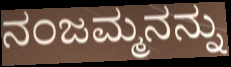
ನಂಜಮ್ಮನನ್ನು